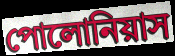
পোলোনিয়াস